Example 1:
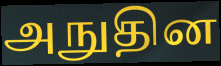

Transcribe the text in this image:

அநுதின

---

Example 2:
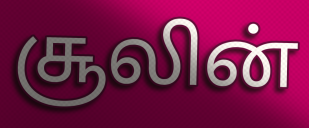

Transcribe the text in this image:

சூலின்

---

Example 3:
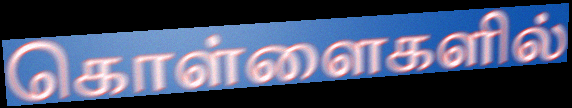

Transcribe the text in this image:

கொள்ளைகளில்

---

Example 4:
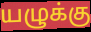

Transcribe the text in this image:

யழுக்கு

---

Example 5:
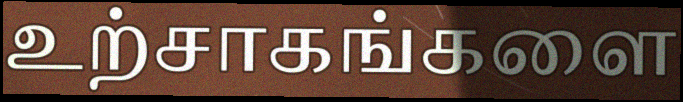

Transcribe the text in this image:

உற்சாகங்களை